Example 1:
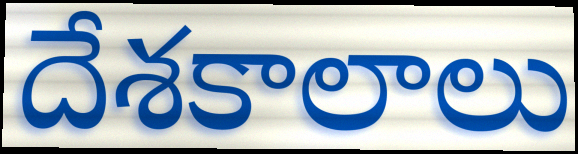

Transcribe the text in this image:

దేశకాలాలు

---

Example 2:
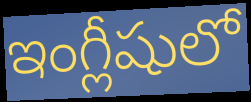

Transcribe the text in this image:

ఇంగ్లీషులో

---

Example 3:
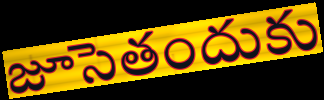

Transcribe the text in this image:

జూసెతందుకు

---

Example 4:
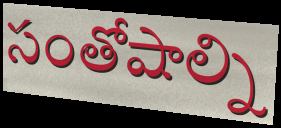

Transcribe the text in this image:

సంతోషాల్ని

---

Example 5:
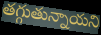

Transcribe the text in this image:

తగ్గుతున్నాయని